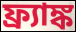
ফ্র্যাঙ্ক